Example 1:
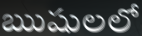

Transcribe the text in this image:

ఋషులలో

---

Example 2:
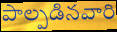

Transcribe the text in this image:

పాల్పడినవారి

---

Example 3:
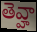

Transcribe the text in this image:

తెవ్హా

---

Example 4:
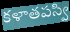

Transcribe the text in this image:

కళాతపస్వి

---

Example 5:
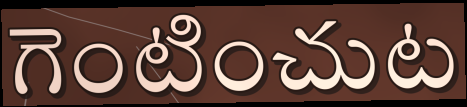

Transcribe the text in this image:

గెంటించుట